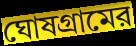
ঘোষগ্রামের